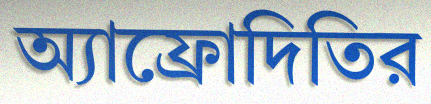
অ্যাফ্রোদিতির